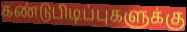
கண்டுபிடிப்புகளுக்கு